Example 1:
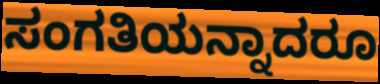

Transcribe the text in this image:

ಸಂಗತಿಯನ್ನಾದರೂ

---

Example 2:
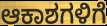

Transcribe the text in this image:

ಆಕಾಶಗಳಿಗೆ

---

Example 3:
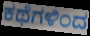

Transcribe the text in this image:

ಕಥೆಗಳಿಂದ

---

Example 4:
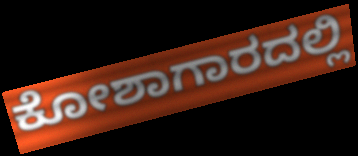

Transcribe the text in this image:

ಕೋಶಾಗಾರದಲ್ಲಿ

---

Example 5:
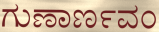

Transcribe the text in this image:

ಗುಣಾರ್ಣವಂ